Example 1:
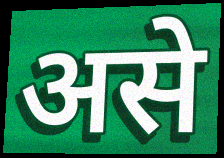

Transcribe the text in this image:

असे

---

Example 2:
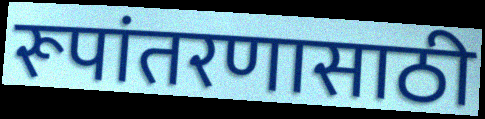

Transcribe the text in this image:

रूपांतरणासाठी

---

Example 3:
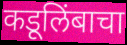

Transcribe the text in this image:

कडूलिंबाचा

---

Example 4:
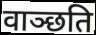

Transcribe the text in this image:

वाञ्छति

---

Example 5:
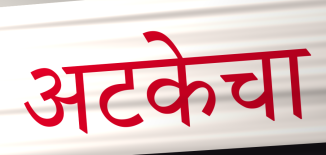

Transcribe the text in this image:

अटकेचा